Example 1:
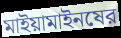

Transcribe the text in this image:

মাইয়ামাইনষের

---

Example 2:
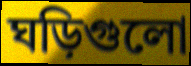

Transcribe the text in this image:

ঘড়িগুলো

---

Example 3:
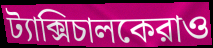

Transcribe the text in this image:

ট্যাক্সিচালকেরাও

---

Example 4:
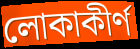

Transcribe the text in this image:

লোকাকীর্ণ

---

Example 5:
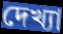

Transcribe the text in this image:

দেখ্যা